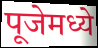
पूजेमध्ये